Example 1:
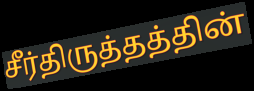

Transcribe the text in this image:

சீர்திருத்தத்தின்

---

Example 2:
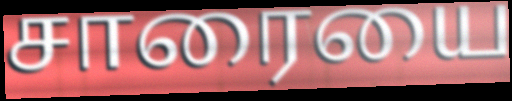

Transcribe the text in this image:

சாரையை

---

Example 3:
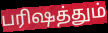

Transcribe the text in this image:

பரிஷத்தும்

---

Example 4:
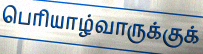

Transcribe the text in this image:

பெரியாழ்வாருக்குக்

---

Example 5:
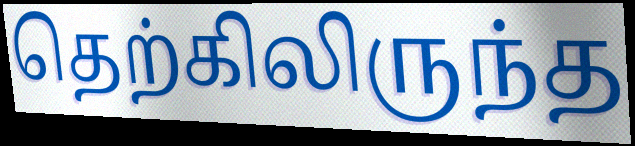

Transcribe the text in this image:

தெற்கிலிருந்த